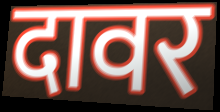
दावर